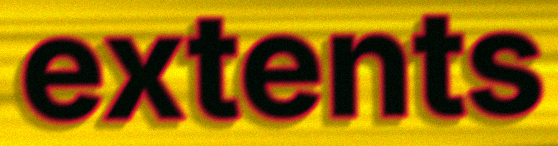
extents